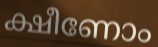
ക്ഷീണോം